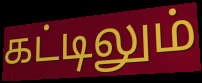
கட்டிலும்